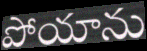
పోయాను